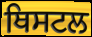
ਥਿਸਟਲ